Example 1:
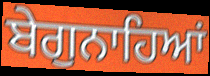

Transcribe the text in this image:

ਬੇਗੁਨਾਹਿਆਂ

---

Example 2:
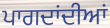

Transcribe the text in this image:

ਪਾਗਦਾਂਦੀਆਂ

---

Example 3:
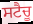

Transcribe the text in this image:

ਸਟੈਚੂ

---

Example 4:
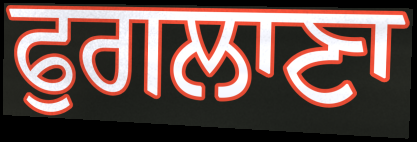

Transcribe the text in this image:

ਫੁਗਲਾਣਾ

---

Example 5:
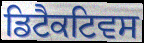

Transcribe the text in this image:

ਡਿਟੈਕਟਿਵਸ